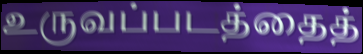
உருவப்படத்தைத்